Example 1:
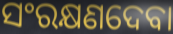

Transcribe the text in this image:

ସଂରକ୍ଷଣଦେବା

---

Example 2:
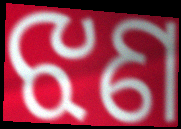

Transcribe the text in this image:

ଝଣ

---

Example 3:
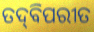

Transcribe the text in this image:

ତଦ୍‍ବିପରୀତ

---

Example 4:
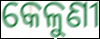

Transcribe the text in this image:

କେଳୁଣୀ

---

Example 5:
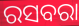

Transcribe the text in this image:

ରସବରା